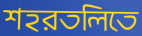
শহরতলিতে